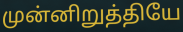
முன்னிறுத்தியே